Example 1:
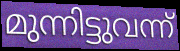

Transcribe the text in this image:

മുന്നിട്ടുവന്ന്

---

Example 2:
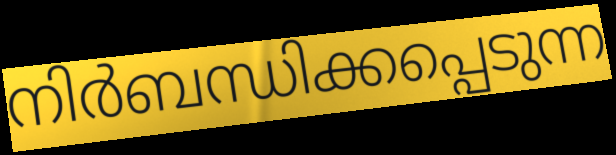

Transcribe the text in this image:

നിർബന്ധിക്കപ്പെടുന്ന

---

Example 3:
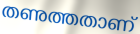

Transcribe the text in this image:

തണുത്തതാണ്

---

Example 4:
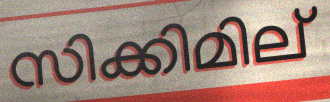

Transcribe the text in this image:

സിക്കിമില്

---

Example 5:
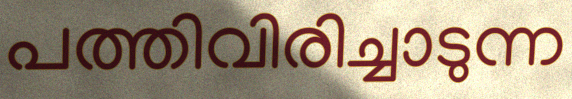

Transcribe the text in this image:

പത്തിവിരിച്ചാടുന്ന